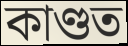
কাণ্ডত